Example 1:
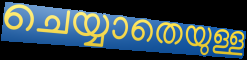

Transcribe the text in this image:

ചെയ്യാതെയുള്ള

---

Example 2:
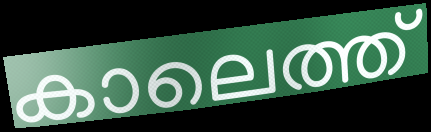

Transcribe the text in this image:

കാലെത്ത്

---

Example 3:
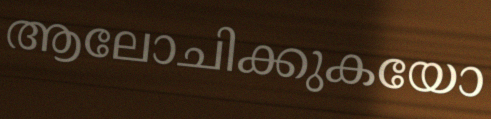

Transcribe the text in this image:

ആലോചിക്കുകയോ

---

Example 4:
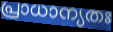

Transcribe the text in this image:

പ്രാധാന്യതഃ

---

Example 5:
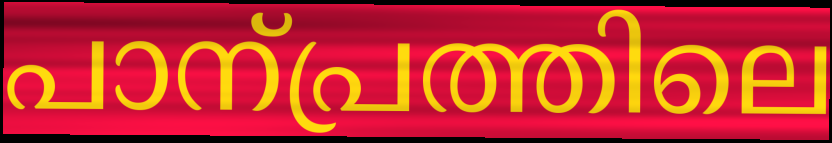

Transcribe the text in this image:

പാന്പ്രത്തിലെ